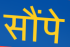
सौंपे